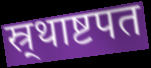
स्र्थाष्टपत